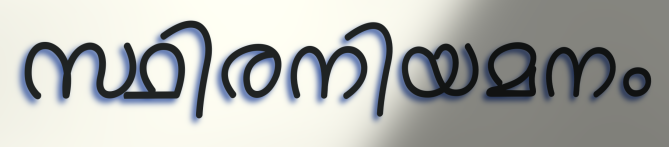
സ്ഥിരനിയമനം